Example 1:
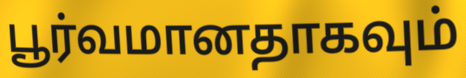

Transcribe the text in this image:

பூர்வமானதாகவும்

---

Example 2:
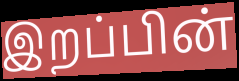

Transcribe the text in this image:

இறப்பின்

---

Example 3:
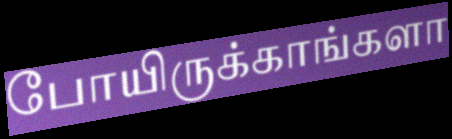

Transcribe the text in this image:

போயிருக்காங்களா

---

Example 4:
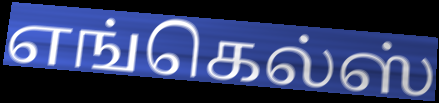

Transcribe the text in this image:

எங்கெல்ஸ்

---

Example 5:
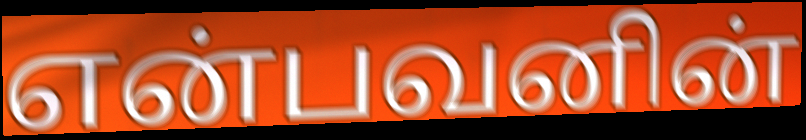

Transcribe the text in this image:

என்பவனின்